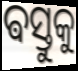
ଵସ୍ତୁକୁ